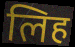
लिह